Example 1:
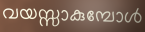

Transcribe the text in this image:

വയസ്സാകുമ്പോൾ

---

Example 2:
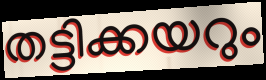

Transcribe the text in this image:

തട്ടിക്കയറും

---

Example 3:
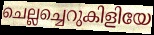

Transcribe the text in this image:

ചെല്ലച്ചെറുകിളിയേ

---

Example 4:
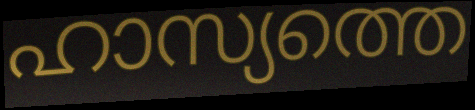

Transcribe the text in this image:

ഹാസ്യത്തെ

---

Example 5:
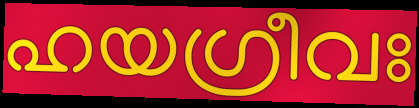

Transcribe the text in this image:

ഹയഗ്രീവഃ